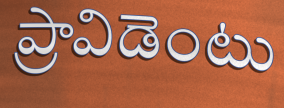
ప్రావిడెంటు